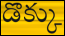
డొక్కు